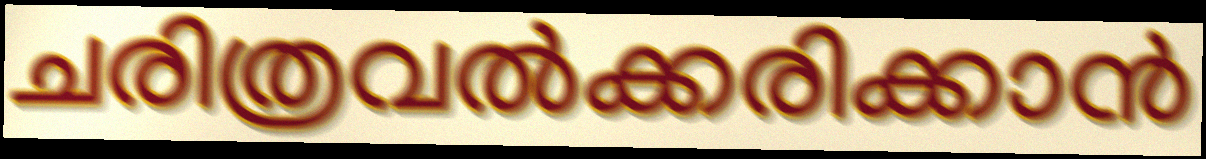
ചരിത്രവൽക്കരിക്കാൻ